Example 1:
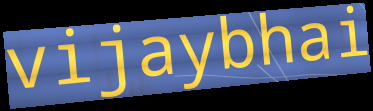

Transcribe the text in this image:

vijaybhai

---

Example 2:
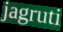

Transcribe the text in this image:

jagruti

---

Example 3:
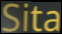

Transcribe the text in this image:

Sita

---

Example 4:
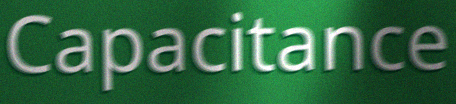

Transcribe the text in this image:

Capacitance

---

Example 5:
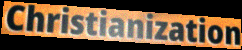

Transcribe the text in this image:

Christianization